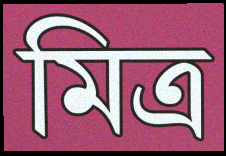
মিত্ৰ